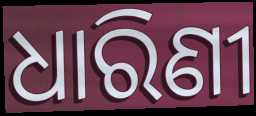
ଧାରିଣୀ